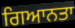
ਗਿਆਨਤਾ